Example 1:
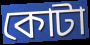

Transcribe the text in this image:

কোটা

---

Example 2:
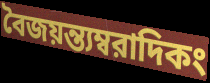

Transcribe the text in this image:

বৈজয়ন্ত্যম্বরাদিকং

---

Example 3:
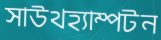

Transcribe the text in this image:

সাউথহ্যাম্পটন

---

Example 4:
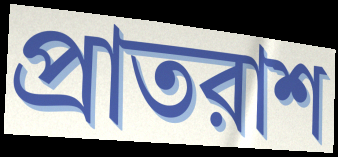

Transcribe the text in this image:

প্রাতরাশ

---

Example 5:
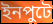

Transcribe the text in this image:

ইনপুটে